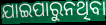
ଯାଇପାରୁନଥିବା